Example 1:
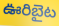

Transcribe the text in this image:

ఊరిబైట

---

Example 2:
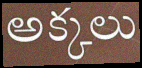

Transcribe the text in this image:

అక్కలు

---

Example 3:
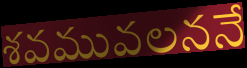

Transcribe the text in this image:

శవమువలననే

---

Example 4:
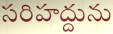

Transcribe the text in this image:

సరిహద్దును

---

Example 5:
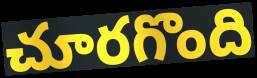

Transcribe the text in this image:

చూరగొంది